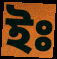
ইঃ